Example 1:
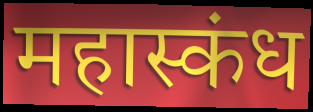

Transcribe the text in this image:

महास्कंध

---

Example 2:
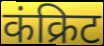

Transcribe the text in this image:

कंक्रिट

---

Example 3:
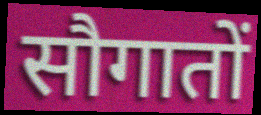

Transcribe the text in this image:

सौगातों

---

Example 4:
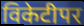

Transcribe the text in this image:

विकेटीपर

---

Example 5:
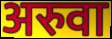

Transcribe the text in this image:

अरुवा